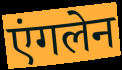
एंगलेन